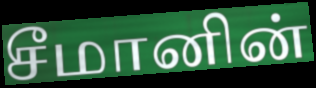
சீமானின்